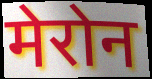
मेरोन